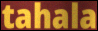
tahala